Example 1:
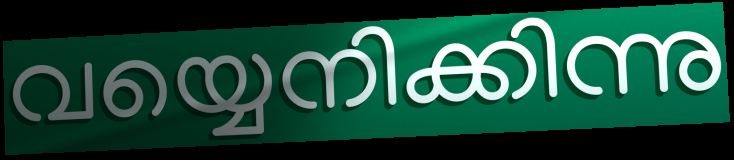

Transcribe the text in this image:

വയ്യെനിക്കിന്നു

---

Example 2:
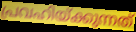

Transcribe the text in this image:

പ്രവഹിയ്ക്കുന്നത്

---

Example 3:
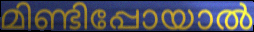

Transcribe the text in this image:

മിണ്ടിപ്പോയാൽ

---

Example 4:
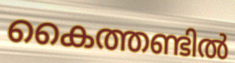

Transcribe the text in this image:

കൈത്തണ്ടിൽ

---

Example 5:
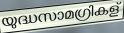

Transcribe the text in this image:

യുദ്ധസാമഗ്രികള്